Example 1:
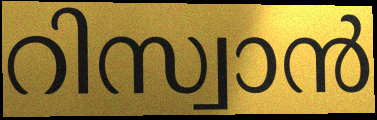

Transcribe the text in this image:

റിസ്വാൻ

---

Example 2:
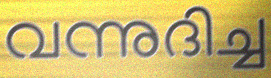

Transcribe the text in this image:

വന്നുദിച്ച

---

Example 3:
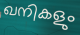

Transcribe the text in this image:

ഖനികളും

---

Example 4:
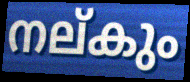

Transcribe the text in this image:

നല്കും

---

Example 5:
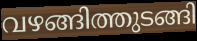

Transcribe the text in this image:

വഴങ്ങിത്തുടങ്ങി